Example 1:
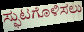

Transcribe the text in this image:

ಸ್ಫುಟಗೊಳಿಸಲು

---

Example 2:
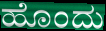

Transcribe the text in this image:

ಹೊಂದು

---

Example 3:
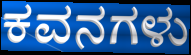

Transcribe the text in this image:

ಕವನಗಳು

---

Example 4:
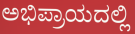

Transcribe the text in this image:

ಅಭಿಪ್ರಾಯದಲ್ಲಿ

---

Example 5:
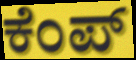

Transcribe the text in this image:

ಕೆಂಪ್